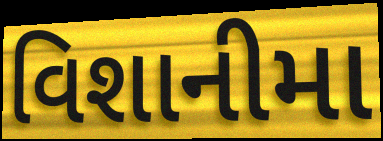
વિશાનીમા